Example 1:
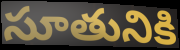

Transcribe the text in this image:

సూతునికి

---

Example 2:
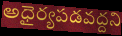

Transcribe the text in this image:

అధైర్యపడవద్దని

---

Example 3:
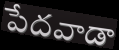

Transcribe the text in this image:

పేదవాడా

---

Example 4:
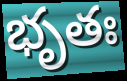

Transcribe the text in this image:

భృతః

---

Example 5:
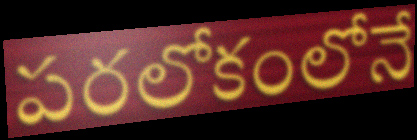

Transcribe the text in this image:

పరలోకంలోనే